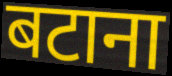
बटाना